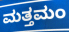
ಮತ್ತಮಂ